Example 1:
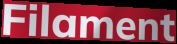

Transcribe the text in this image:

Filament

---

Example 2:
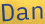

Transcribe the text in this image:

Dan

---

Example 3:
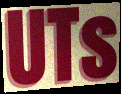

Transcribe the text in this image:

UTs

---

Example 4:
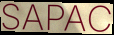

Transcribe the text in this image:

SAPAC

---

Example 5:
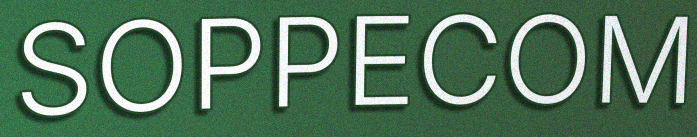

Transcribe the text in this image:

SOPPECOM